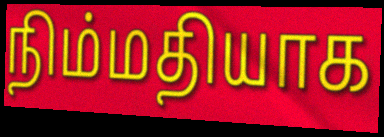
நிம்மதியாக